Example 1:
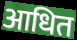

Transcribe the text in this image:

आधित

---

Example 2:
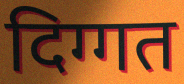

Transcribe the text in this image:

दिग्गत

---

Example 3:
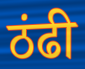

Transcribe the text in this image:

ठंढी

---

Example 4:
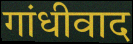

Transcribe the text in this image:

गांधीवाद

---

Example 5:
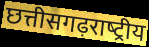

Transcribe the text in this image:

छत्तीसगढ़राष्ट्रीय